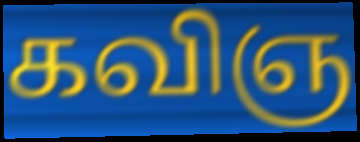
கவிஞ